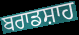
ਬਰਾਡਸ਼ਾਹ